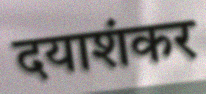
दयाशंकर